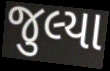
જુલ્યા